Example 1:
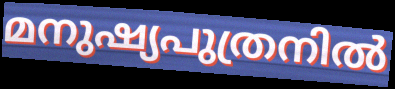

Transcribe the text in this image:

മനുഷ്യപുത്രനിൽ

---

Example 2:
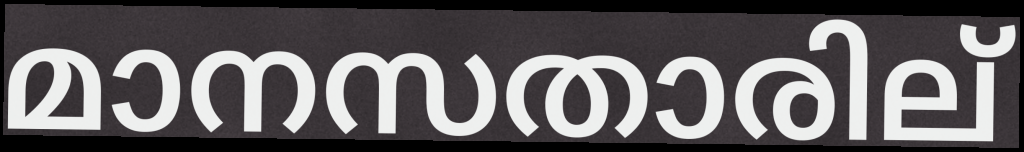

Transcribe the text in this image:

മാനസതാരില്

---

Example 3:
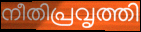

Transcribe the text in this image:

നീതിപ്രവൃത്തി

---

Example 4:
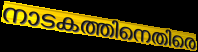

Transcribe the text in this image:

നാടകത്തിനെതിരെ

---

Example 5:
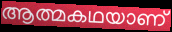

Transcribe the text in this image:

ആത്മകഥയാണ്